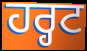
ਹਰ੍ਹਟ